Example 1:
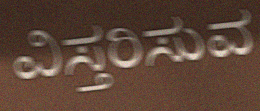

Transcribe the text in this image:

ವಿಸ್ತರಿಸುವ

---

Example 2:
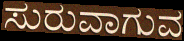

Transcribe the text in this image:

ಸುರುವಾಗುವ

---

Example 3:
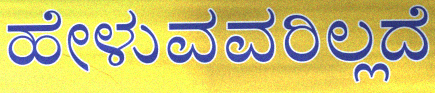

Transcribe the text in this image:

ಹೇಳುವವರಿಲ್ಲದೆ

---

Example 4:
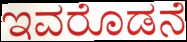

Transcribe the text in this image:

ಇವರೊಡನೆ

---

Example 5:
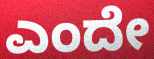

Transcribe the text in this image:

ಎಂದೇ